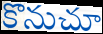
కొనుచూ